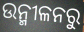
ଉନ୍ମୀଳନରୁ